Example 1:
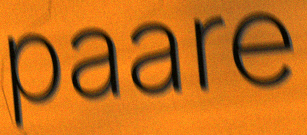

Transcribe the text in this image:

paare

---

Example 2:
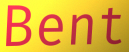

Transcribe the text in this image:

Bent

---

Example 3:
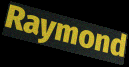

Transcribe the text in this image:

Raymond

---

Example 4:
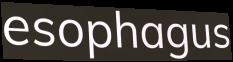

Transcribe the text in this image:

esophagus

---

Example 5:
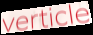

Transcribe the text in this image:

verticle